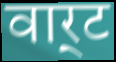
वार्ट